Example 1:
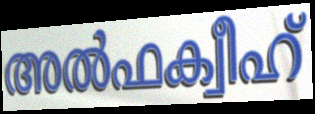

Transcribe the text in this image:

അൽഫക്വീഹ്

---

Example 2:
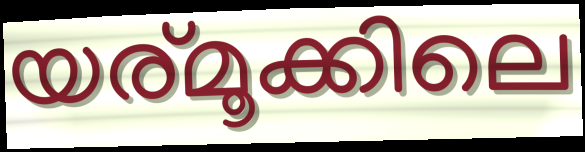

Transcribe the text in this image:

യര്മൂക്കിലെ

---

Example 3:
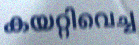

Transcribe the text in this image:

കയറ്റിവെച്ച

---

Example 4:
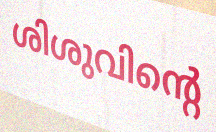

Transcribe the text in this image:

ശിശുവിന്റെ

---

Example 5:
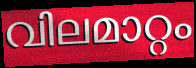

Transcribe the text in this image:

വിലമാറ്റം